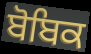
ਬੋਬਿਕ